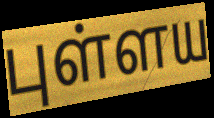
புள்ளய